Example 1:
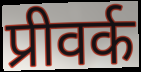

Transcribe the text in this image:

प्रीवर्क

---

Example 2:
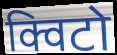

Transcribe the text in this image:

क्विटो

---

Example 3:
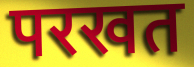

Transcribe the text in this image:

परखत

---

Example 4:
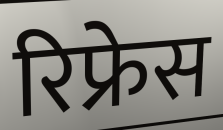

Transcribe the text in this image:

रिफ्रेस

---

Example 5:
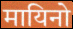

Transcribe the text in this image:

मायिनो